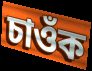
চাওঁক